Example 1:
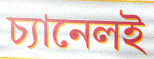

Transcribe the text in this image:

চ্যানেলই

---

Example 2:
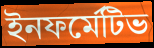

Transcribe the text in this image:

ইনফর্মেটিভ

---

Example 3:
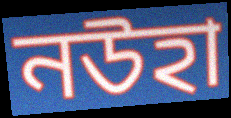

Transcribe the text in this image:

নউহা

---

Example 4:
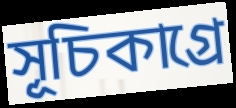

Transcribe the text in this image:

সূচিকাগ্রে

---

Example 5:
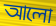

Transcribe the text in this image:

আলো